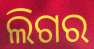
ଲିଗର